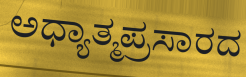
ಅಧ್ಯಾತ್ಮಪ್ರಸಾರದ